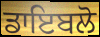
ਡਾਇਬਲੋ